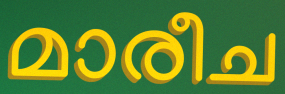
മാരീച